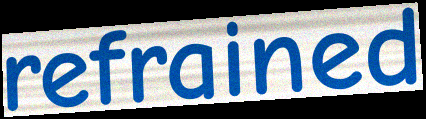
refrained